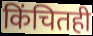
किंचितही